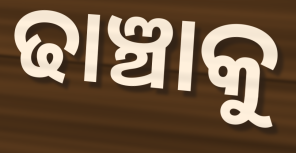
ଢାଞ୍ଚାକୁ